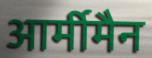
आर्मीमैन